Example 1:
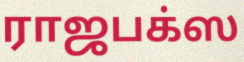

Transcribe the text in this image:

ராஜபக்ஸ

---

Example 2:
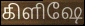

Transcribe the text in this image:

கிளிஷே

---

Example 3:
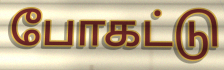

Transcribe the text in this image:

போகட்டு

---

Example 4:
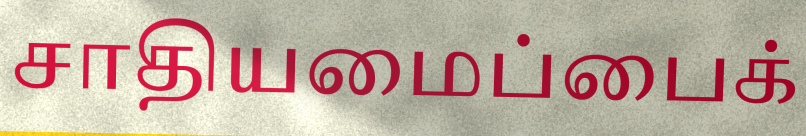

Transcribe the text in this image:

சாதியமைப்பைக்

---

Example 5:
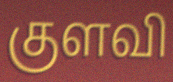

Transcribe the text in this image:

குளவி